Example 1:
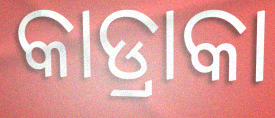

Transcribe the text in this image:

କାଡ୍ରାକା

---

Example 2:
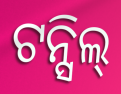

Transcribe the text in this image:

ଟନ୍ସିଲ୍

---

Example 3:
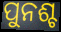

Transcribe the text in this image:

ପୁନଶ୍ଚ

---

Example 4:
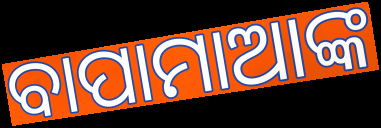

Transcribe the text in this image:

ବାପାମାଆଙ୍କ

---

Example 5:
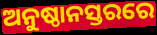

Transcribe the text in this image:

ଅନୁଷ୍ଠାନସ୍ତରରେ